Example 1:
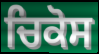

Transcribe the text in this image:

ਚਿਕੋਸ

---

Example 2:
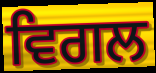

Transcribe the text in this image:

ਵਿਗਲ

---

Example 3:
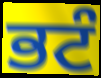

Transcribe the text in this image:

ਭਟੰ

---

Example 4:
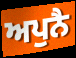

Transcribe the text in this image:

ਅਪੁਨੈ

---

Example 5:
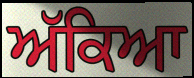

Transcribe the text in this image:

ਅੱਕਿਆ